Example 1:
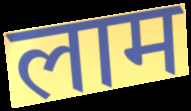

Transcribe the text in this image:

लाम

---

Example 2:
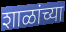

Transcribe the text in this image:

शाळांच्या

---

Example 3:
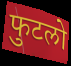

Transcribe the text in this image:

फुटलो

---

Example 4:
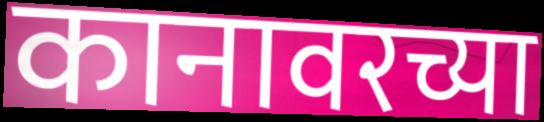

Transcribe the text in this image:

कानावरच्या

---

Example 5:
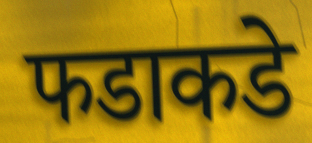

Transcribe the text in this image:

फडाकडे